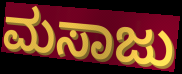
ಮಸಾಜು